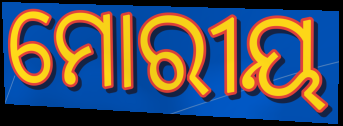
ମୋରୀୟ